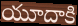
యూదాకి